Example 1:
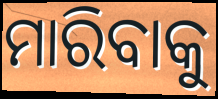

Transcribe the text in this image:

ମାରିବାକୁ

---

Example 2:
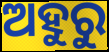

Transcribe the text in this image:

ଅହୁରୁ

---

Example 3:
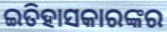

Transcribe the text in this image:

ଇତିହାସକାରଙ୍କର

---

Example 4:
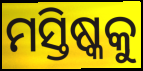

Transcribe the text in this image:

ମସ୍ତିଷ୍କକୁ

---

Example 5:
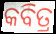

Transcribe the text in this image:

କବିତ୍ର